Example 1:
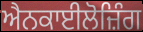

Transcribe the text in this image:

ਐਨਕਾਈਲੋਜ਼ਿੰਗ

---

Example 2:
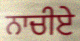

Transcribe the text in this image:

ਨਾਚੀਏ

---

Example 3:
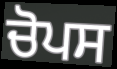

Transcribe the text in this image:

ਚੋਪਸ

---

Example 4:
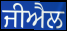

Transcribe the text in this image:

ਜੀਐਲ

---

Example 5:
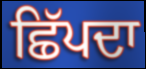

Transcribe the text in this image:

ਛਿੱਪਦਾ